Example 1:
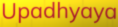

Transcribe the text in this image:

Upadhyaya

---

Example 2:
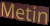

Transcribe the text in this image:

Metin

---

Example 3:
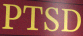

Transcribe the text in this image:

PTSD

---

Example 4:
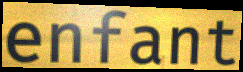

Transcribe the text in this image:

enfant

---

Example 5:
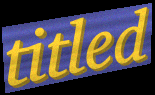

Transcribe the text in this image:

titled